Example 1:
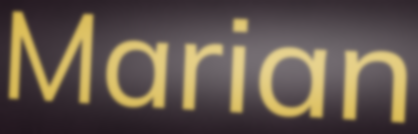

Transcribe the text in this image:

Marian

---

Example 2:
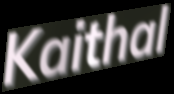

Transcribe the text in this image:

Kaithal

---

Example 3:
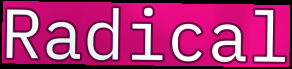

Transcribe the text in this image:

Radical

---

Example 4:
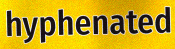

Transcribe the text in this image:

hyphenated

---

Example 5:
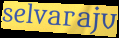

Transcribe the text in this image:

selvaraju